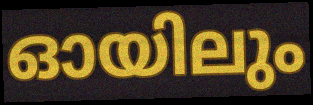
ഓയിലും